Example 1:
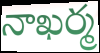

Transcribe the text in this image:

నాఖర్మ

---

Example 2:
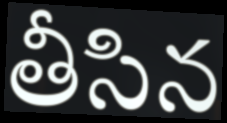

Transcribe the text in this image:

తీసిన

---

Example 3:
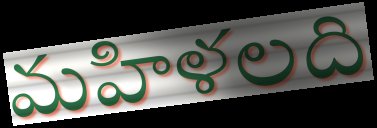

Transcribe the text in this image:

మహిళలది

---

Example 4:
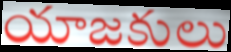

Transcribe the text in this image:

యాజకులు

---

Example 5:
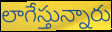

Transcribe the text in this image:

లాగేస్తున్నారు